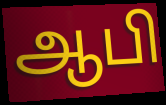
ஆபி